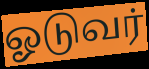
ஓடுவர்